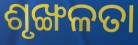
ଶୃଙ୍ଖଳତା